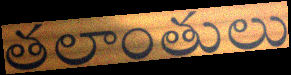
తలాంతులు